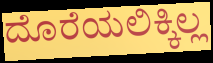
ದೊರೆಯಲಿಕ್ಕಿಲ್ಲ